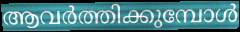
ആവർത്തിക്കുമ്പോൾ